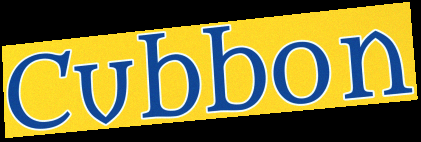
Cubbon